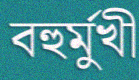
বহুর্মুখী